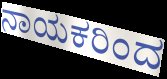
ನಾಯಕರಿಂದ